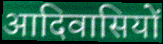
आदिवासियों